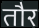
तौर